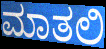
ಮಾತಲಿ